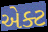
એક્ટ